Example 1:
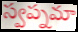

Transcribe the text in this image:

స్వప్నమా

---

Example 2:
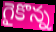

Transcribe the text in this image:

గైకొన్న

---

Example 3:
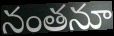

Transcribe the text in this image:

నంతనూ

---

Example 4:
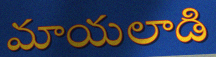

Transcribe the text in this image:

మాయలాడి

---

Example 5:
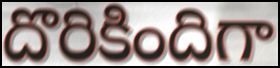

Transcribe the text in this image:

దొరికిందిగా